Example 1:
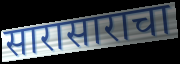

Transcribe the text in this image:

सारासाराचा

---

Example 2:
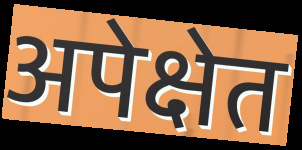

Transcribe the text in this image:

अपेक्षेत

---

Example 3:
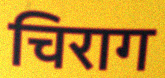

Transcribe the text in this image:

चिराग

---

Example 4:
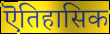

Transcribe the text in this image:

ऎतिहासिक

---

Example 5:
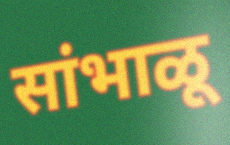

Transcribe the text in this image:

सांभाळू